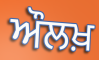
ਔਲਖ਼